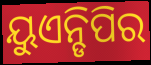
ୟୁଏନ୍ଡିପିର